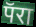
पॅरा